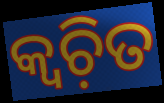
କ୍ୱଚ଼ିତ